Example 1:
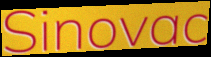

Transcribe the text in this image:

Sinovac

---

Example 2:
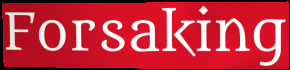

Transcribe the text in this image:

Forsaking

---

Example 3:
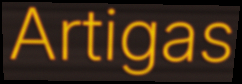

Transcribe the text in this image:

Artigas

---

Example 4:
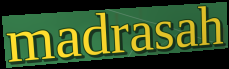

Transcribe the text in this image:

madrasah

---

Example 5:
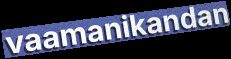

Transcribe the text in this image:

vaamanikandan